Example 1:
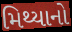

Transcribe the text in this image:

મિથ્યાનો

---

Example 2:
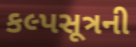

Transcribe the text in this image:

કલ્પસૂત્રની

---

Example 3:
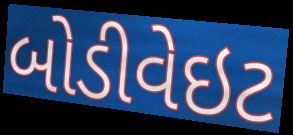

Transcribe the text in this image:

બોડીવેઇટ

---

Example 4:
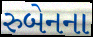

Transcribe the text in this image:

રુબેનના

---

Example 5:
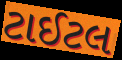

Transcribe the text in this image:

ટાઈટલ